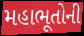
મહાભૂતોની